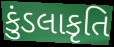
કુંડલાકૃતિ